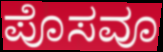
ಪೊಸವೂ